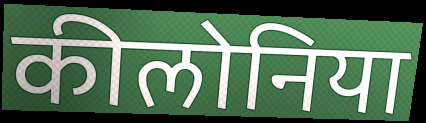
कीलोनिया